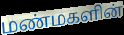
மண்மகளின்